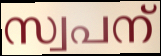
സ്വപന്